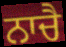
ਨਾਚੈ